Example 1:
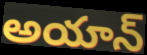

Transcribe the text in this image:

అయాన్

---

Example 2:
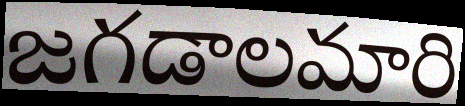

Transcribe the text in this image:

జగడాలమారి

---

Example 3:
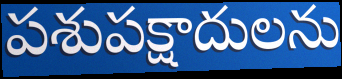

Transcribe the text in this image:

పశుపక్షాదులను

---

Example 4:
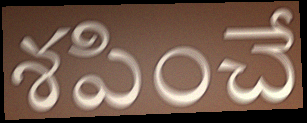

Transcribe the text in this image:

శపించే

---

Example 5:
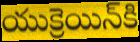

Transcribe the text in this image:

యుక్రెయిన్‌కి